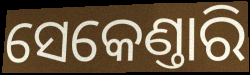
ସେକେଣ୍ତାରି